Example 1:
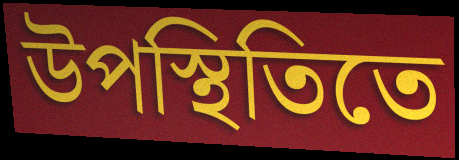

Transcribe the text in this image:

উপস্থিতিতে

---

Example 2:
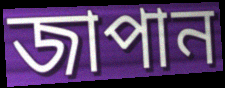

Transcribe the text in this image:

জাপান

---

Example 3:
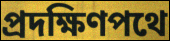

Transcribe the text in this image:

প্রদক্ষিণপথে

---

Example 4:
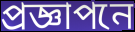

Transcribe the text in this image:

প্রজ্ঞাপনে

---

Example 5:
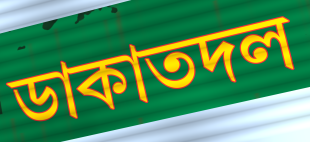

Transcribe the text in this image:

ডাকাতদল